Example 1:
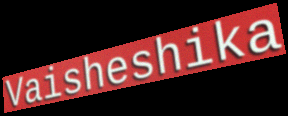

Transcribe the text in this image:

Vaisheshika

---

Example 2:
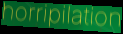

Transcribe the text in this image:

horripilation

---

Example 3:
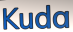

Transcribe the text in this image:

Kuda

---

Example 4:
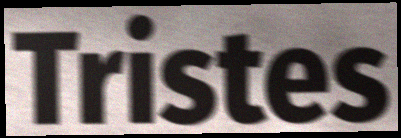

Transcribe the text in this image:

Tristes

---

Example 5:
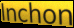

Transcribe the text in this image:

Inchon